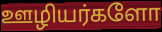
ஊழியர்களோ